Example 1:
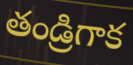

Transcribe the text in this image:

తండ్రిగాక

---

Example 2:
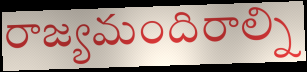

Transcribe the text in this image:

రాజ్యమందిరాల్ని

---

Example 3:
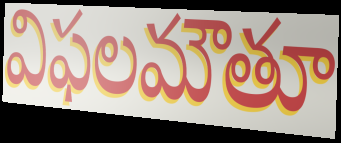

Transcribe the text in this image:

విఫలమౌతూ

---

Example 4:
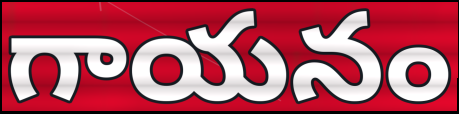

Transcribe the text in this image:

గాయనం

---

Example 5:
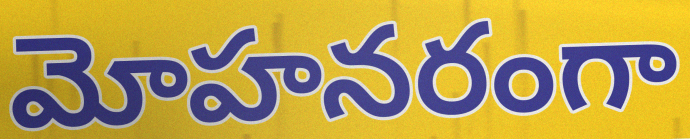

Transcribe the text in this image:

మోహనరంగా